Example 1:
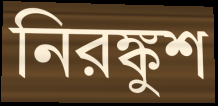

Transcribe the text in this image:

নিরঙ্কুশ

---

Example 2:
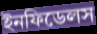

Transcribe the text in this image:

ইনফিডেলস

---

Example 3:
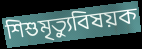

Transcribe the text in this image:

শিশুমৃত্যুবিষয়ক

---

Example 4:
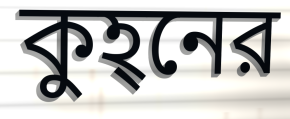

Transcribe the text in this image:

কুহ্‌নের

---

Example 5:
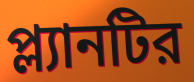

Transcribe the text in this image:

প্ল্যানটির